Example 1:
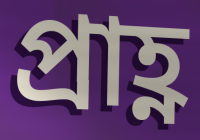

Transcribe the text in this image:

প্ৰাহ্ণ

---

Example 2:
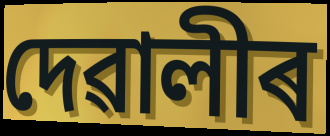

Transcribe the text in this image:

দেৱালীৰ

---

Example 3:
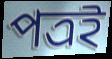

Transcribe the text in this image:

পত্ৰই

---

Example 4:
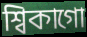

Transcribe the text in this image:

শ্বিকাগো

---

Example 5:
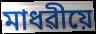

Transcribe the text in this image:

মাধৱীয়ে